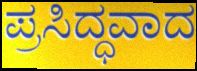
ಪ್ರಸಿದ್ಧವಾದ